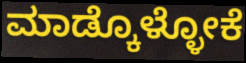
ಮಾಡ್ಕೊಳ್ಳೋಕೆ